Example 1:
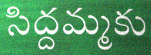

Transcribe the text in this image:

సిద్దమ్మకు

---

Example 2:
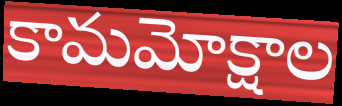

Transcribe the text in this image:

కామమోక్షాల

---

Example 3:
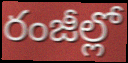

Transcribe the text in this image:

రంజీల్లో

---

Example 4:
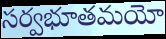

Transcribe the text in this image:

సర్వభూతమయో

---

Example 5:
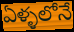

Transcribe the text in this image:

ఏళ్ళలోనే